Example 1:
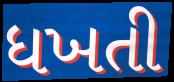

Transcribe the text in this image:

ધખતી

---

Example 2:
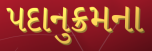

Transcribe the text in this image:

પદાનુક્રમના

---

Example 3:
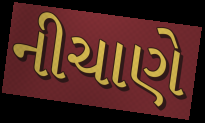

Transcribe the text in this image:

નીચાણે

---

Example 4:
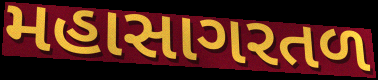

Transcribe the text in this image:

મહાસાગરતળ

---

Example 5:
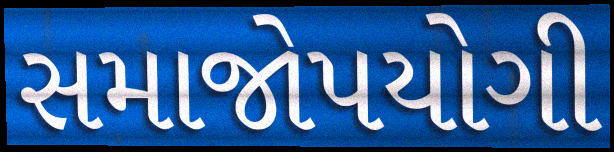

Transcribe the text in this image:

સમાજોપયોગી